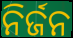
ନିର୍ଜନ